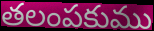
తలంపకుము